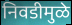
निवडीमुळे